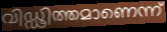
വിഡ്ഢിത്തമാണെന്ന്